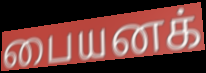
பையனக்